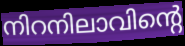
നിറനിലാവിന്റെ